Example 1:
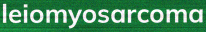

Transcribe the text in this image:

leiomyosarcoma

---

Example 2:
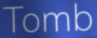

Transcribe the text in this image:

Tomb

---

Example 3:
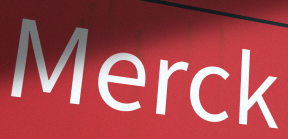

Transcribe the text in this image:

Merck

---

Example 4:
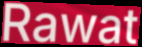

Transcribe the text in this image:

Rawat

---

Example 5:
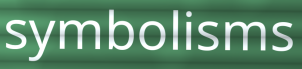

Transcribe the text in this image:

symbolisms